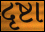
દૃષ્ટા